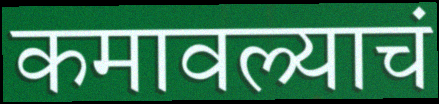
कमावल्याचं